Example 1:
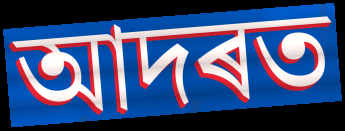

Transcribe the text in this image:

আদৰত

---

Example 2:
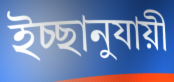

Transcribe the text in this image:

ইচ্ছানুযায়ী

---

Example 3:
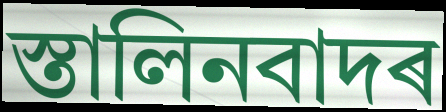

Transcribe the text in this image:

স্তালিনবাদৰ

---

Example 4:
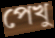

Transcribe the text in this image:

পেখু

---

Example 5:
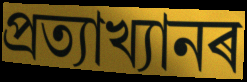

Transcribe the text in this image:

প্ৰত্যাখ্যানৰ